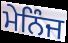
ਮੇਨਿੰਜ